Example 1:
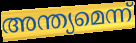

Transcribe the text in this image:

അന്ത്യമെന്ന്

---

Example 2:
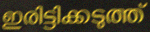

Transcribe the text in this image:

ഇരിട്ടിക്കടുത്ത്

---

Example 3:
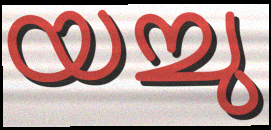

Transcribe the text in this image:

യച്ചു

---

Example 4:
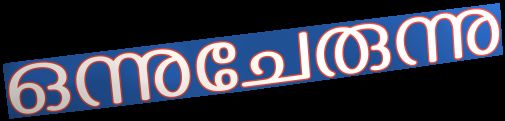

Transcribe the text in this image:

ഒന്നുചേരുന്നു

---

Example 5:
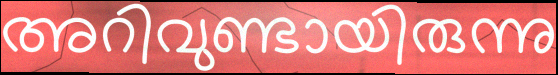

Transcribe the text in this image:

അറിവുണ്ടായിരുന്നു